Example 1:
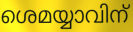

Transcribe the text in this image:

ശെമയ്യാവിന്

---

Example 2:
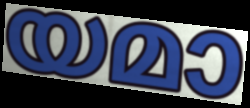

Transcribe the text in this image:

യമാ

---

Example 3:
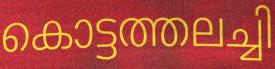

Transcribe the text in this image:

കൊട്ടത്തലച്ചി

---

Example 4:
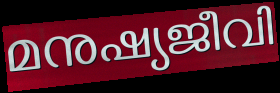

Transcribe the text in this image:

മനുഷ്യജീവി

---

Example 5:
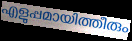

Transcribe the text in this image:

എളുപ്പമായിത്തീരും